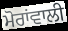
ਮੋਰਾਂਵਾਲੀ